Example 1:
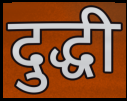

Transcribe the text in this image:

दुद्धी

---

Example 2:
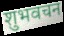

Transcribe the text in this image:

शुभवचन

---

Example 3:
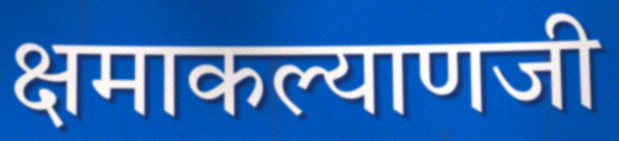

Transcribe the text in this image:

क्षमाकल्याणजी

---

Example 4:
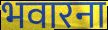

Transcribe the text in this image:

भवारना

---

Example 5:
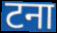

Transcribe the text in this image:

टना